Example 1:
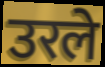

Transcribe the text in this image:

उरले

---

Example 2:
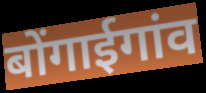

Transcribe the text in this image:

बोंगाईगांव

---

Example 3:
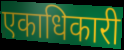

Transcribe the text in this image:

एकाधिकारी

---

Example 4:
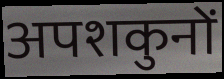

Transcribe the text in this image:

अपशकुनों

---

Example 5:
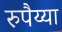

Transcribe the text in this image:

रुपैय्या